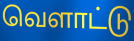
வெளாட்டு